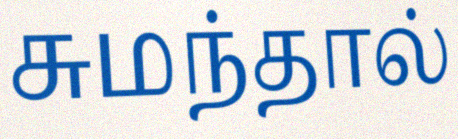
சுமந்தால்